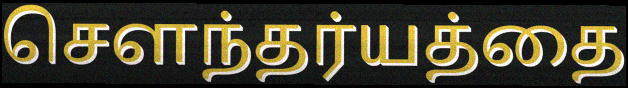
செளந்தர்யத்தை